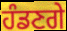
ਹੰਡਣਗੇ